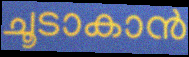
ചൂടാകാൻ